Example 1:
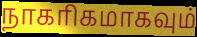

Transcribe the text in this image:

நாகரிகமாகவும்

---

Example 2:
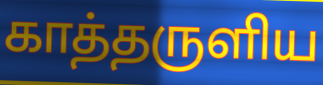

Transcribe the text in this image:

காத்தருளிய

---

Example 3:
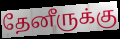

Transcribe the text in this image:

தேனீருக்கு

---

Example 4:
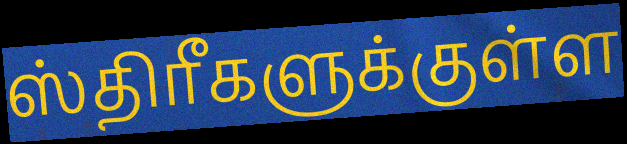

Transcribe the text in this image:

ஸ்திரீகளுக்குள்ள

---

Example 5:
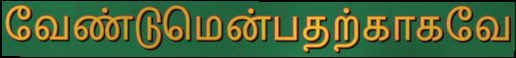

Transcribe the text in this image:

வேண்டுமென்பதற்காகவே